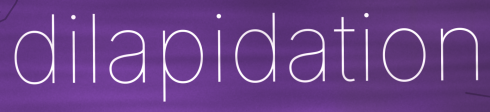
dilapidation